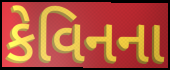
કેવિનના